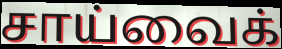
சாய்வைக்